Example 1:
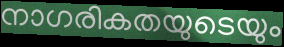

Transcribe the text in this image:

നാഗരികതയുടെയും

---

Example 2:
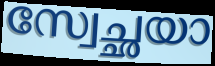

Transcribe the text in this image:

സ്വേച്ഛയാ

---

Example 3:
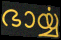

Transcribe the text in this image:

ഭാൎയ്യ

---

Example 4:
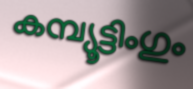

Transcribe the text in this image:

കമ്പ്യൂട്ടിംഗും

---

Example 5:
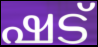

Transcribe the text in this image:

ഷട്